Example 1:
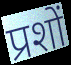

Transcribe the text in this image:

प्रशों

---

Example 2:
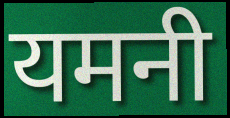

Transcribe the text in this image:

यमनी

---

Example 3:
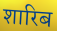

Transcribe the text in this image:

शारिब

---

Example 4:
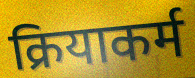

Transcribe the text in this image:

क्रियाकर्म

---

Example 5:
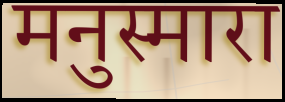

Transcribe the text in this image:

मनुस्मारा